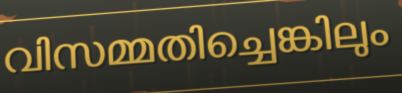
വിസമ്മതിച്ചെങ്കിലും